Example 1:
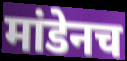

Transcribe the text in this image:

मांडेनच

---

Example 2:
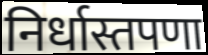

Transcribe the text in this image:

निर्धास्तपणा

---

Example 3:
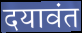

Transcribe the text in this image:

दयावंत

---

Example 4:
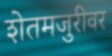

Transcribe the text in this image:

शेतमजुरीवर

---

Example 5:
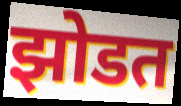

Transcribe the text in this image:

झोडत